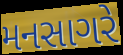
મનસાગરે